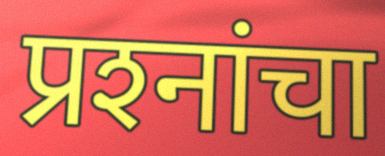
प्रश्‍नांचा